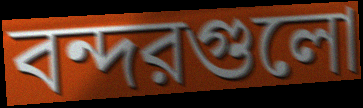
বন্দরগুলো